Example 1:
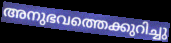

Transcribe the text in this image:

അനുഭവത്തെക്കുറിച്ചു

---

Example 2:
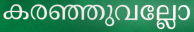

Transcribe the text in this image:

കരഞ്ഞുവല്ലോ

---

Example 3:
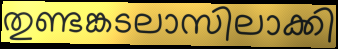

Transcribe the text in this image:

തുണ്ടങ്കടലാസിലാക്കി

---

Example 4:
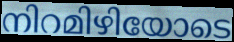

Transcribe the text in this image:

നിറമിഴിയോടെ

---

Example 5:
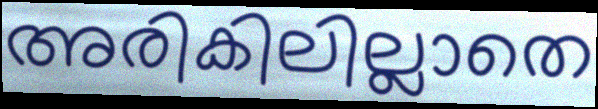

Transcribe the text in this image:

അരികിലില്ലാതെ